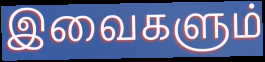
இவைகளும்